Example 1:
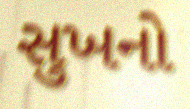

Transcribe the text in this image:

સુખનો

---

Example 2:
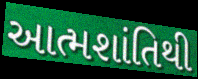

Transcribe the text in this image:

આત્મશાંતિથી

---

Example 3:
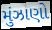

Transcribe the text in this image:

મુંઝાણો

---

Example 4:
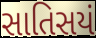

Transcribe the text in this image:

સાતિસયં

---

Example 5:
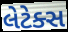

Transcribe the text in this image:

લેટેક્સ